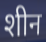
शीन